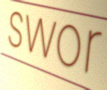
swor